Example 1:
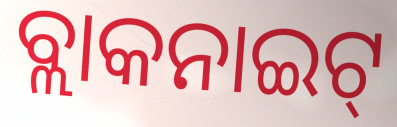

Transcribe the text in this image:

ବ୍ଲାକନାଇଟ୍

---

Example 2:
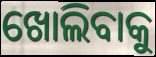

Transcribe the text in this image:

ଖୋଲିବାକୁ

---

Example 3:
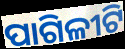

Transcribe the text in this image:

ପାଗିଳୀଟି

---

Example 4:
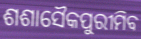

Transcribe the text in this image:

ଶଶାସୈକପୁରୀମିବ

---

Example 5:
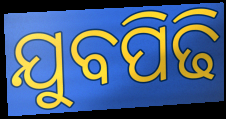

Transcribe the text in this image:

ଯୁବପିଢି